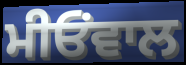
ਮੀਓਂਵਾਲ